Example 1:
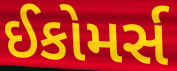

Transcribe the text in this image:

ઈકોમર્સ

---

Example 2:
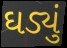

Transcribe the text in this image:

ઘડ્યું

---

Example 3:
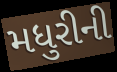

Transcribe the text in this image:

મધુરીની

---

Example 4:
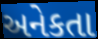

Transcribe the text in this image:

અનેકતા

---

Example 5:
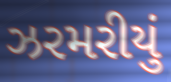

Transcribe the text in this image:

ઝરમરીયું